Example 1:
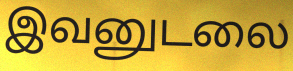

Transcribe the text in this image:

இவனுடலை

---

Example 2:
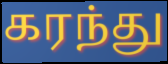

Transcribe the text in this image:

கரந்து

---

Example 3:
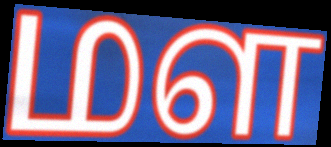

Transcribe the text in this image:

மள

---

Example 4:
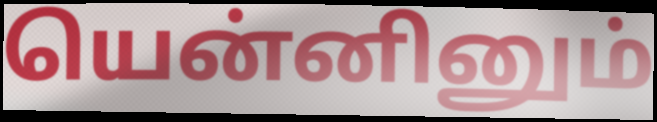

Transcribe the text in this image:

யென்னினும்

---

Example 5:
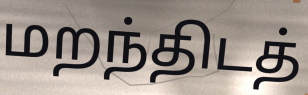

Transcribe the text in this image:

மறந்திடத்